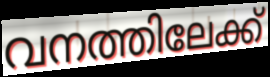
വനത്തിലേക്ക്